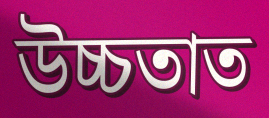
উচ্চতাত